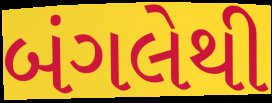
બંગલેથી